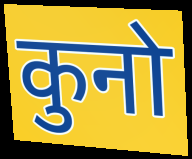
कुनो